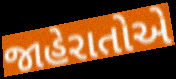
જાહેરાતોએ